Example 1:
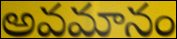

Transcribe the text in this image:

అవమానం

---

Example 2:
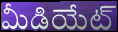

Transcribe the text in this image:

మీడియేట్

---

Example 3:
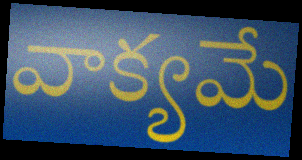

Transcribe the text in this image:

వాక్యమే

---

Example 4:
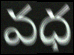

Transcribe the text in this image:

వధ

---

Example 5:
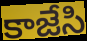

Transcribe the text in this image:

కాజేసి